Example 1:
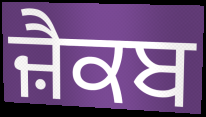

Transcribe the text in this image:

ਜ਼ੈਕਬ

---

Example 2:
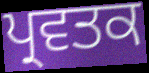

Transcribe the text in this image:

ਪ੍ਰਵਤਕ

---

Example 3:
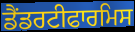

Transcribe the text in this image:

ਡੈਂਡਰਟੀਫਾਰਮਿਸ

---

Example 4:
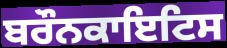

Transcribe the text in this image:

ਬਰੌਨਕਾਇਟਿਸ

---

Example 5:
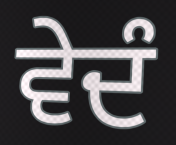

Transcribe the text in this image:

ਵੇਦੰ